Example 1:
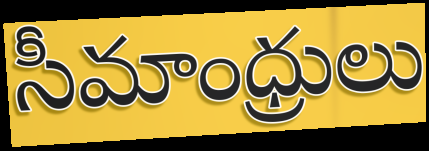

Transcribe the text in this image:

సీమాంధ్రులు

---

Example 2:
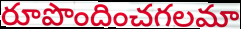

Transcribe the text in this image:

రూపొందించగలమా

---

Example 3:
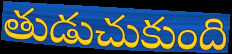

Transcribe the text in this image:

తుడుచుకుంది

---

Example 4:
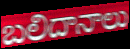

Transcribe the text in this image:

బలిదానాలు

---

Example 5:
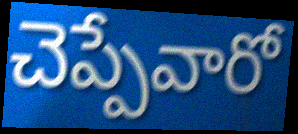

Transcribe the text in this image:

చెప్పేవారో